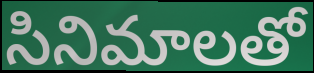
సినిమాలతో